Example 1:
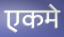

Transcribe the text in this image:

एकमे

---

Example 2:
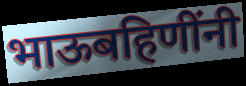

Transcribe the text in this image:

भाऊबहिणींनी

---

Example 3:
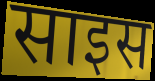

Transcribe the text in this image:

साइस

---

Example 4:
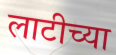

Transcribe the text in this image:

लाटीच्या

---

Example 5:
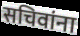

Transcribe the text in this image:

सचिवांना